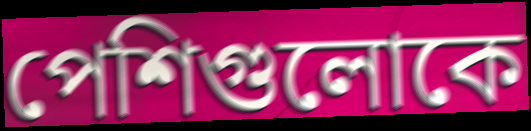
পেশিগুলোকে